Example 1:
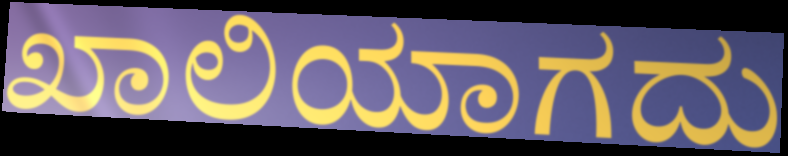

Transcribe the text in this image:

ಖಾಲಿಯಾಗದು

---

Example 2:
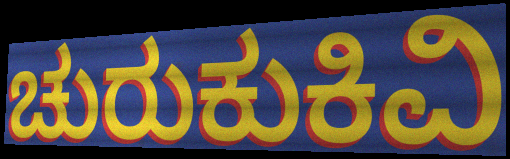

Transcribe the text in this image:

ಚುರುಕುಕಿವಿ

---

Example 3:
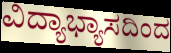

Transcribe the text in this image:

ವಿದ್ಯಾಭ್ಯಾಸದಿಂದ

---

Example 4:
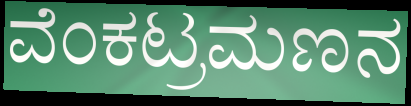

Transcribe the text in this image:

ವೆಂಕಟ್ರಮಣನ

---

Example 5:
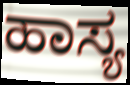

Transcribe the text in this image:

ಹಾಸ್ಯ